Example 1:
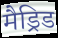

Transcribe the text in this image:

मैड्रिड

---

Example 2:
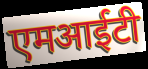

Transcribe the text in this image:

एमआईटी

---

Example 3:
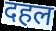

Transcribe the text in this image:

दहल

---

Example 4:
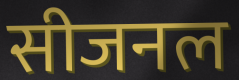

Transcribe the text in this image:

सीजनल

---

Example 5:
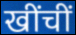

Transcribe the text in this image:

खींचीं